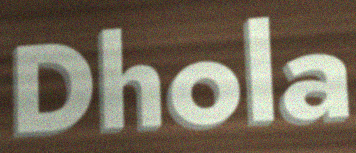
Dhola